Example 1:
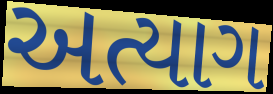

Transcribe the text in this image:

અત્યાગ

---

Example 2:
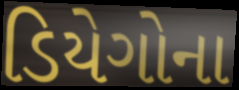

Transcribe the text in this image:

ડિયેગોના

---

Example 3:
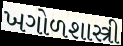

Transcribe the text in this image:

ખગોળશાસ્ત્રી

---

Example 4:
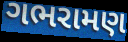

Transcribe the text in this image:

ગભરામણ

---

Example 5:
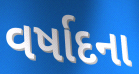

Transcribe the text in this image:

વર્ષાદના